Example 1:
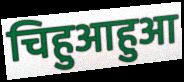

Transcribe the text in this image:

चिहुआहुआ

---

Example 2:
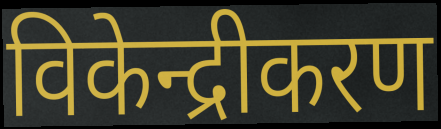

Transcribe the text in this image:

विकेन्द्रीकरण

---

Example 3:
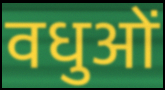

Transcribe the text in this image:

वधुओं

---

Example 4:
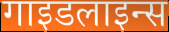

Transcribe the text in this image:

गाइडलाइन्स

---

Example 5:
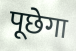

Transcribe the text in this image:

पूछेगा